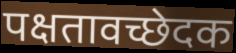
पक्षतावच्छेदक